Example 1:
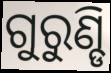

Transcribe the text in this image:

ଗୁରୁଣ୍ଡି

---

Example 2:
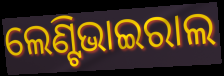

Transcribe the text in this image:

ଲେଣ୍ଟିଭାଇରାଲ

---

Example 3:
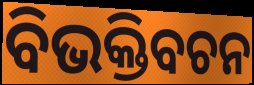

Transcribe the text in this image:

ବିଭକ୍ତିବଚନ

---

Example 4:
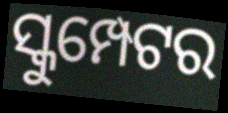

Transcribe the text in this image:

ସ୍କୁମ୍ପେଟର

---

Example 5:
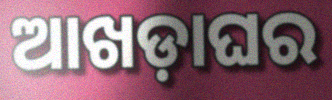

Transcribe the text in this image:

ଆଖଡ଼ାଘର